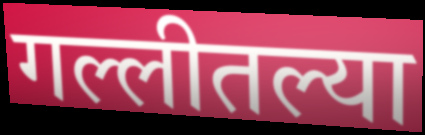
गल्लीतल्या